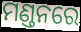
ମଣ୍ଡନରେ